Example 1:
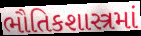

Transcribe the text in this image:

ભૌતિકશાસ્ત્રમાં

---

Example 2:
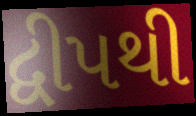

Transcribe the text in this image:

દ્વીપથી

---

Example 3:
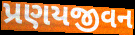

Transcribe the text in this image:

પ્રણયજીવન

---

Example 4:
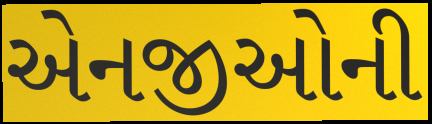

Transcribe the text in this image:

એનજીઓની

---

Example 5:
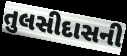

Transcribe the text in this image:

તુલસીદાસની